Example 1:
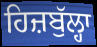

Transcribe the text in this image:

ਹਿਜ਼ਬੁੱਲ੍ਹਾ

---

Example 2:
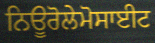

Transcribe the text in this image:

ਨਿਊਰੋਲੇਮੋਸਾਈਟ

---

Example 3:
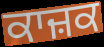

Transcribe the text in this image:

ਕਾਜ਼ਕ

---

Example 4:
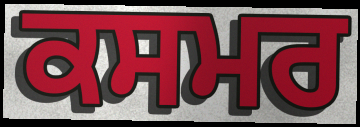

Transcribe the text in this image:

ਕਸਮਰ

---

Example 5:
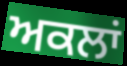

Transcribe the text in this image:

ਅਕਲਾਂ